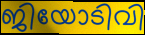
ജിയോടിവി